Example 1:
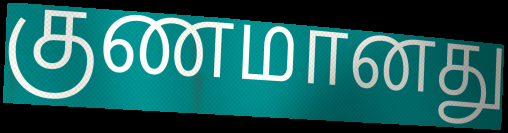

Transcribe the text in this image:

குணமானது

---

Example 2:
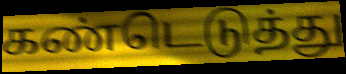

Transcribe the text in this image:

கண்டெடுத்து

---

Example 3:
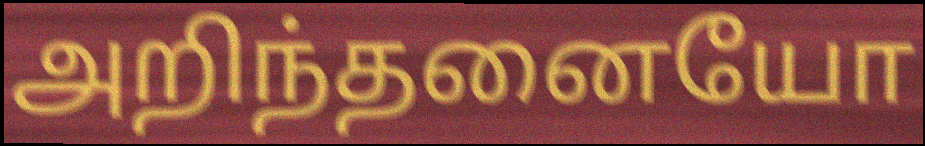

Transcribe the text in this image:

அறிந்தனையோ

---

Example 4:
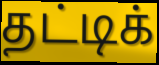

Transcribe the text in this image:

தட்டிக்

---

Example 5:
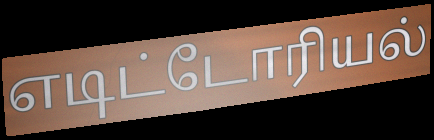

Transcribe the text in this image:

எடிட்டோரியல்